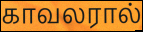
காவலரால்